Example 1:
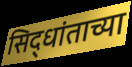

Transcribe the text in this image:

सिद्धांताच्या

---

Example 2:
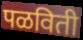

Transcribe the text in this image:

पळविती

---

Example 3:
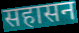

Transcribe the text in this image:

सहासन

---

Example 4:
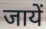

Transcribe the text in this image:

जायें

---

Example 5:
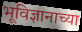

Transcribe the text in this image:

भूविज्ञानाच्या